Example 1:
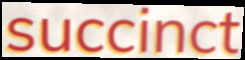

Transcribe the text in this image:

succinct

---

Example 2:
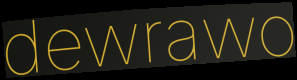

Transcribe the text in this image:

dewrawo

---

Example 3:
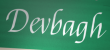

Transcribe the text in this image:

Devbagh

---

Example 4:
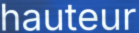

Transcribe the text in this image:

hauteur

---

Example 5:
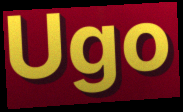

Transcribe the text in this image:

Ugo